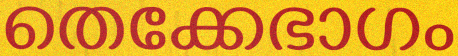
തെക്കേഭാഗം